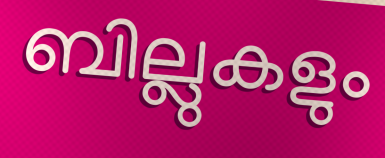
ബില്ലുകളും